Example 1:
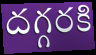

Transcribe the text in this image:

దగ్గరకి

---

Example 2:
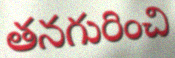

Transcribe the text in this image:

తనగురించి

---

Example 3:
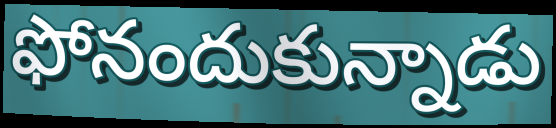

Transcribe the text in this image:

ఫోనందుకున్నాడు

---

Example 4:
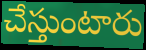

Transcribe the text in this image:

చేస్తుంటారు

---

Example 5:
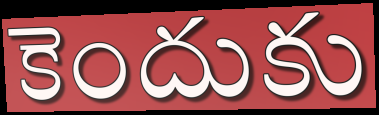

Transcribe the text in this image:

కెందుకు